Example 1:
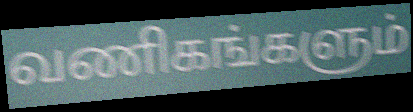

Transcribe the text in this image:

வணிகங்களும்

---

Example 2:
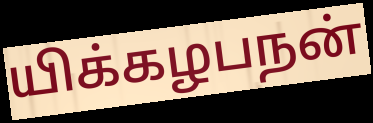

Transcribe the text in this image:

யிக்கழபநன்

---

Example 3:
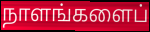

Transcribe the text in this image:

நாளங்களைப்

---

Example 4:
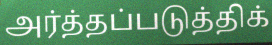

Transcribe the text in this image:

அர்த்தப்படுத்திக்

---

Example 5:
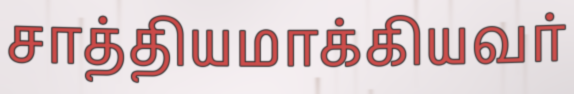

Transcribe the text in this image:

சாத்தியமாக்கியவர்